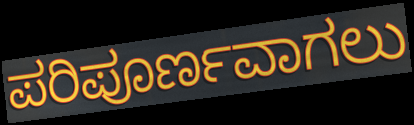
ಪರಿಪೂರ್ಣವಾಗಲು